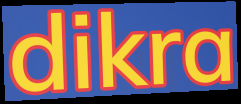
dikra